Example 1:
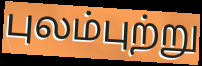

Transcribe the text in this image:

புலம்புற்று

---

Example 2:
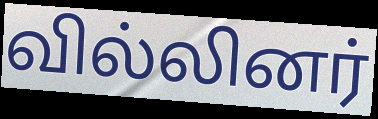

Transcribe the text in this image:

வில்லினர்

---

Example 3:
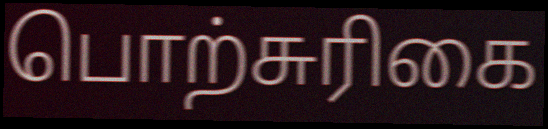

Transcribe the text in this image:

பொற்சுரிகை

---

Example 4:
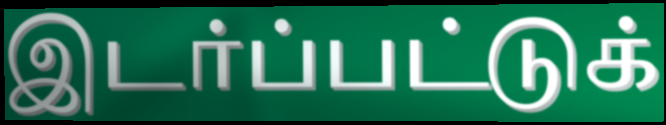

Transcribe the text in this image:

இடர்ப்பட்டுக்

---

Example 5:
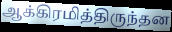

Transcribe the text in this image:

ஆக்கிரமித்திருந்தன